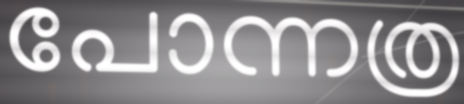
പോന്നത്ര